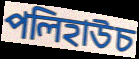
পলিহাউচ